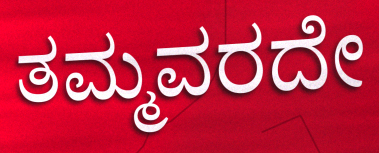
ತಮ್ಮವರದೇ